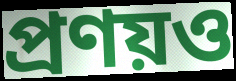
প্রণয়ও